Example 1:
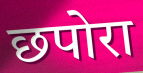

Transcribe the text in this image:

छपोरा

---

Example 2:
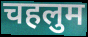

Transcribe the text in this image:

चहलुम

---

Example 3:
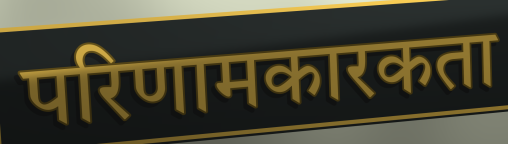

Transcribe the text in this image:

परिणामकारकता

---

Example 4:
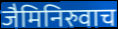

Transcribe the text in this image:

जैमिनिरुवाच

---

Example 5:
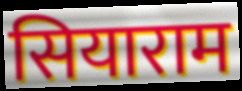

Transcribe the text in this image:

सियाराम